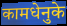
कामधेनुके